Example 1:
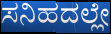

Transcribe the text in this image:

ಸನಿಹದಲ್ಲೇ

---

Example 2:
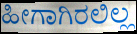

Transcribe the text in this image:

ಹೀಗಾಗಿರಲಿಲ್ಲ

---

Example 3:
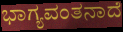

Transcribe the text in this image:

ಭಾಗ್ಯವಂತನಾದೆ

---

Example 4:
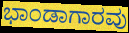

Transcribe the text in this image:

ಭಾಂಡಾಗಾರವು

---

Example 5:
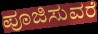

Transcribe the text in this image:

ಪೂಜಿಸುವರೆ